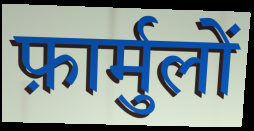
फ़ार्मुलों